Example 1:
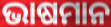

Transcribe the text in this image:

ଭାଷମାନ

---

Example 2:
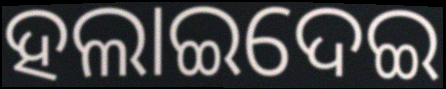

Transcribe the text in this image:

ହଲାଇଦେଇ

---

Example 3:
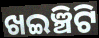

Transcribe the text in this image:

ଖଇଞ୍ଚିଟି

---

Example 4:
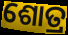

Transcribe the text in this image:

ଶୋତ୍ର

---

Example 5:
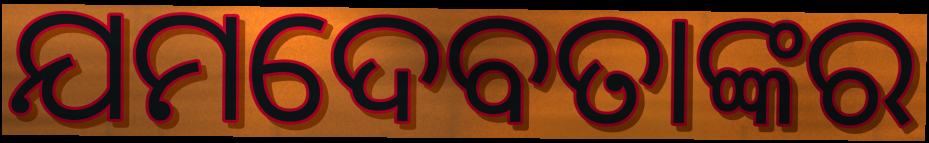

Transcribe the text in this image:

ଯମଦେବତାଙ୍କର